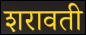
शरावती